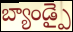
బ్యాండ్పై